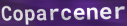
Coparcener